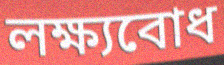
লক্ষ্যবোধ